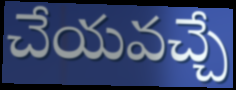
చేయవచ్చే